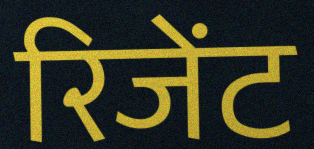
रिजेंट